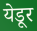
येडूर